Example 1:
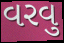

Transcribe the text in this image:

વરવુ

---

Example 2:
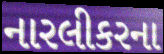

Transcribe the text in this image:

નારલીકરના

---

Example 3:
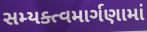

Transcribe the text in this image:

સમ્યક્ત્વમાર્ગણામાં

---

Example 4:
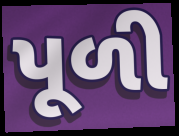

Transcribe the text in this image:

પૂળી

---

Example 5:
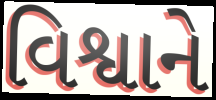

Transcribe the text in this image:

વિશ્વાને